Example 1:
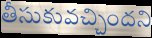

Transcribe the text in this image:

తీసుకువచ్చిందని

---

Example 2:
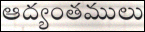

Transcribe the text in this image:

ఆద్యంతములు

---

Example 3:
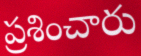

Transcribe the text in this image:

ప్రశించారు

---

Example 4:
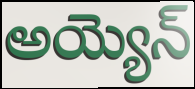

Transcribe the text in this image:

అయ్యెన్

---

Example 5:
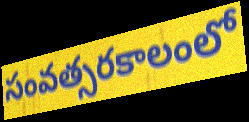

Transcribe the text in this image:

సంవత్సరకాలంలో